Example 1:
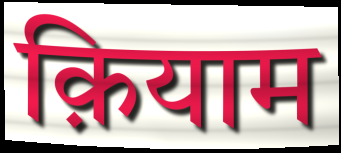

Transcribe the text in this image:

क़ियाम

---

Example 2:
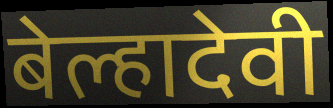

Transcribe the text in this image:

बेल्हादेवी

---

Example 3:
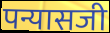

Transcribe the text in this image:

पन्यासजी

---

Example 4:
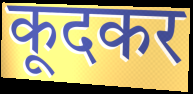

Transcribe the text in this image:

कूदकर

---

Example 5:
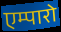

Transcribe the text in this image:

एम्पारो